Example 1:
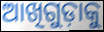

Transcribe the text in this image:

ଆଖିଗୁଡ଼ାକୁ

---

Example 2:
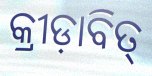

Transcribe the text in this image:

କ୍ରୀଡ଼ାବିତ୍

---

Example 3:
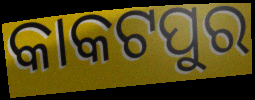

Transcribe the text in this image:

କାକଟପୁର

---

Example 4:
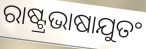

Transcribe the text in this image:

ରାଷ୍ଟ୍ରଭାଷାଯୁତଂ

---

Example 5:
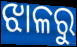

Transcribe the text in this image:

ଝାଳରୁ